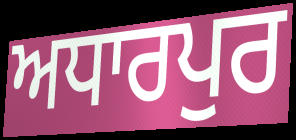
ਅਧਾਰਪੁਰ